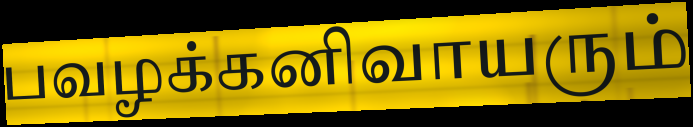
பவழக்கனிவாயரும்